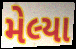
મેલ્યા